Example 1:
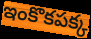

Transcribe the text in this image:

ఇంకొకపక్క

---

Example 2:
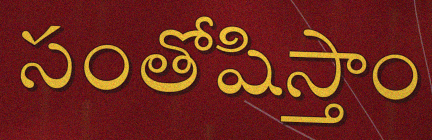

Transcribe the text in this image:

సంతోషిస్తాం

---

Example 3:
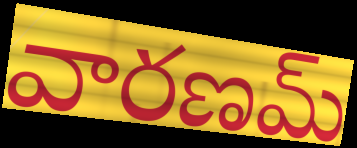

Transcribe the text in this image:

వారణమ్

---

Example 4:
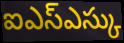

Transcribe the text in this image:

ఐఎస్ఎస్కు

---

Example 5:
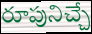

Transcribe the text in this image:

రూపునిచ్చే